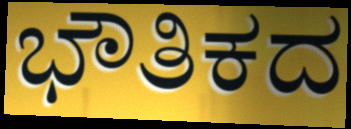
ಭೌತಿಕದ